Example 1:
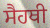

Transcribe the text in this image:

ਸੈਹਥੀ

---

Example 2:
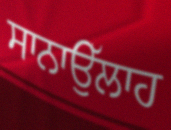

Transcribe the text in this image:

ਸਾਨਾਉੱਲਾਹ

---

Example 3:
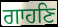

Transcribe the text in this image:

ਗਾਹਣਿ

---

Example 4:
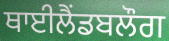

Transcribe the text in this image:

ਥਾਈਲੈਂਡਬਲੌਗ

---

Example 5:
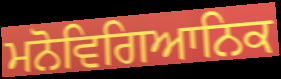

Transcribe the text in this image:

ਮਨੋਵਿਗਿਆਨਿਕ